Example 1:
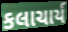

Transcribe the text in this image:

કલાચાર્ય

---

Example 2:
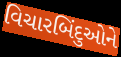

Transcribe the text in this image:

વિચારબિંદુઓને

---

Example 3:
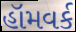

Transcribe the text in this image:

હૉમવર્ક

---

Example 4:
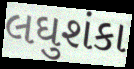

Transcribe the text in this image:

લઘુશંકા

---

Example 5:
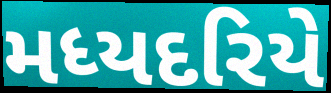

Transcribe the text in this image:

મધ્યદરિયે